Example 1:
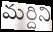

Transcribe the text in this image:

మర్దిని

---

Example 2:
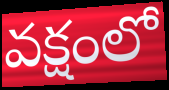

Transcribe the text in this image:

వక్షంలో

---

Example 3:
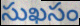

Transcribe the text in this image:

సుఖసం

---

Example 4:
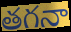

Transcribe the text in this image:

తగనా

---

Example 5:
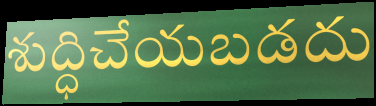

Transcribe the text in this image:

శుద్ధిచేయబడదు